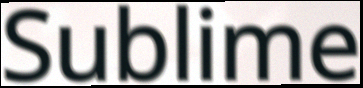
Sublime